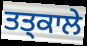
ਤਤ੍ਕਾਲੇ